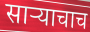
साऱ्याचाच